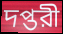
দপ্তরী